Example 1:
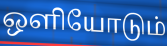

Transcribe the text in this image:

ஒளியோடும்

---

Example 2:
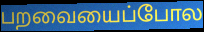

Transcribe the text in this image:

பறவையைப்போல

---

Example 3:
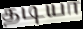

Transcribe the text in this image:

தடியா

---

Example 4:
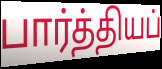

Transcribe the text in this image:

பார்த்தியப்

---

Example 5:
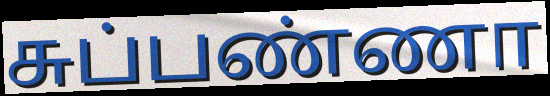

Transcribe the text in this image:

சுப்பண்ணா